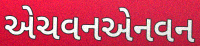
એચવનએનવન